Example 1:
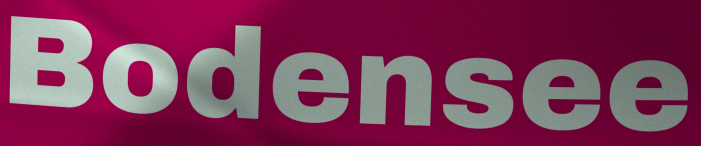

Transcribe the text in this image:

Bodensee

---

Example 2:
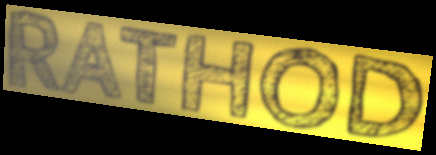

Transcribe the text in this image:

RATHOD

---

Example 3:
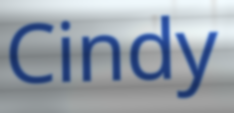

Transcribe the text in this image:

Cindy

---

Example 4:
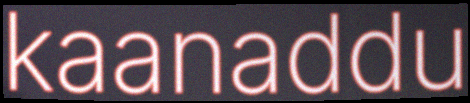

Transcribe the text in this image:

kaanaddu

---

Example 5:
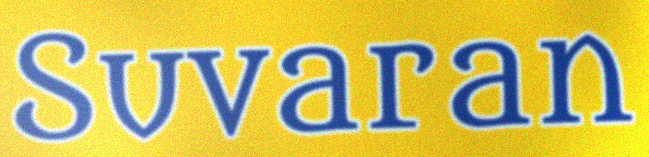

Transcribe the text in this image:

Suvaran